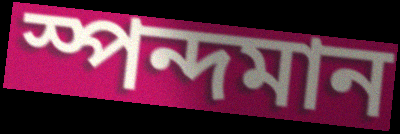
স্পন্দমান